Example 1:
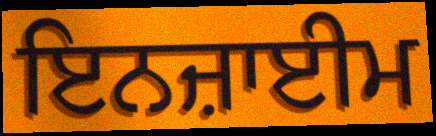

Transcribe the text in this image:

ਇਨਜ਼ਾਈਮ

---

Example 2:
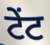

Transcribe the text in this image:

ਟੇਂਟ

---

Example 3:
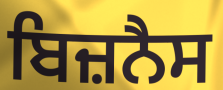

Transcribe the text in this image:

ਬਿਜ਼ਨੈਸ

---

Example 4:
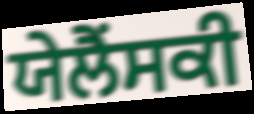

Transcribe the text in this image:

ਯੇਲੈਂਸਕੀ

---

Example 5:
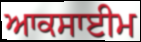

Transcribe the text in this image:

ਆਕਸਾਈਮ